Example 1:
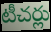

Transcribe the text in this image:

టీచర్లు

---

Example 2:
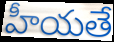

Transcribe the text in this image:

హీయతే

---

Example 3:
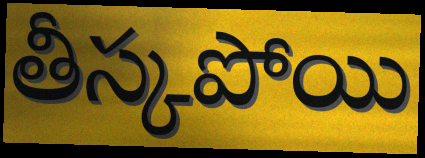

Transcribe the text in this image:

తీస్కపోయి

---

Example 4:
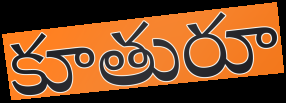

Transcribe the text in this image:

కూతురూ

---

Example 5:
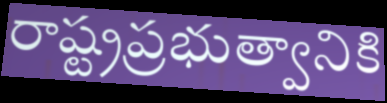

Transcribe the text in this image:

రాష్ట్రప్రభుత్వానికి